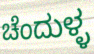
ಚೆಂದುಳ್ಳ